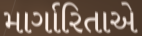
માર્ગારિતાએ